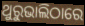
ଥୁରୁଭାଲିଠାରେ